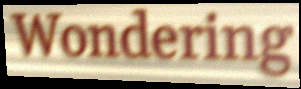
Wondering